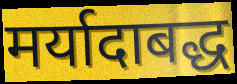
मर्यादाबद्ध